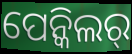
ପେନ୍କିଲର୍